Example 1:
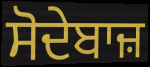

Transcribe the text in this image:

ਸੋਦੇਬਾਜ਼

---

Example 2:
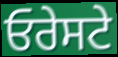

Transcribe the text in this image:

ਓਰੇਸਟੇ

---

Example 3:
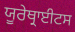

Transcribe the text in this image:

ਯੂਰੇਥ੍ਰਾਈਟਸ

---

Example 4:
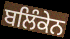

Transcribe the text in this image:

ਬਲਿੰਕੇਨ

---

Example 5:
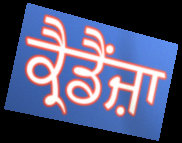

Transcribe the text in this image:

ਕ੍ਰੈਡੈਂਜ਼ਾ